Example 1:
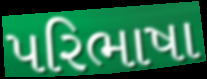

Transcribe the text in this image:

પરિભાષા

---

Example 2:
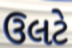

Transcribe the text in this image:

ઉલટે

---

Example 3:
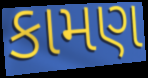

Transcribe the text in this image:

કામણ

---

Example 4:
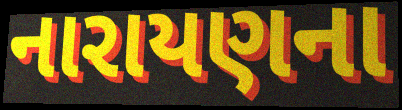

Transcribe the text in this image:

નારાયણના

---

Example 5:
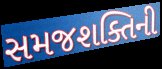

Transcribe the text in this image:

સમજશક્તિની